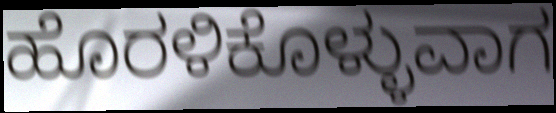
ಹೊರಳಿಕೊಳ್ಳುವಾಗ